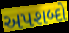
અપશબ્દો